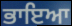
ਭਾਇਆ